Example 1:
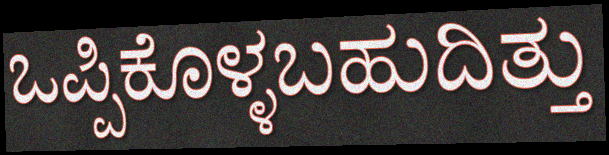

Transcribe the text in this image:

ಒಪ್ಪಿಕೊಳ್ಳಬಹುದಿತ್ತು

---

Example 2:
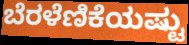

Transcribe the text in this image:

ಬೆರಳೆಣಿಕೆಯಷ್ಟು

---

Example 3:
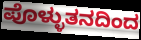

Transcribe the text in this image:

ಪೊಳ್ಳುತನದಿಂದ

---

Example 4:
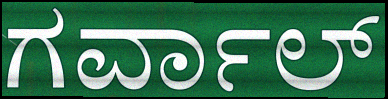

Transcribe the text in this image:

ಗರ್ವಾಲ್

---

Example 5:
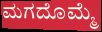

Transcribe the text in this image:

ಮಗದೊಮ್ಮೆ